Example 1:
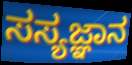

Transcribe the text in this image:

ಸಸ್ಯಜ್ಞಾನ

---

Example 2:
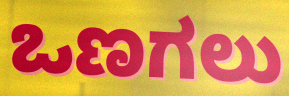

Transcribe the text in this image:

ಒಣಗಲು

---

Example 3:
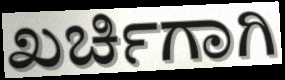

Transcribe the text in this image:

ಖರ್ಚಿಗಾಗಿ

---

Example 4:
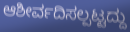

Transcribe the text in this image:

ಆಶೀರ್ವದಿಸಲ್ಪಟ್ಟದ್ದು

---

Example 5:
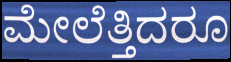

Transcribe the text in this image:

ಮೇಲೆತ್ತಿದರೂ